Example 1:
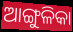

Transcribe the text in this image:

ଆଙ୍ଗୁଳିକା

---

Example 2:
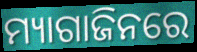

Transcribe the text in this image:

ମ୍ୟାଗାଜିନରେ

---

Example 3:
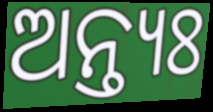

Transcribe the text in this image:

ଅନ୍ତ୍ୟଃ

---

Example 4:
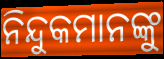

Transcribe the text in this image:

ନିନ୍ଦୁକମାନଙ୍କୁ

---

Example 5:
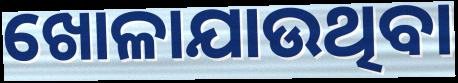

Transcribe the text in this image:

ଖୋଳାଯାଉଥିବା